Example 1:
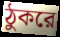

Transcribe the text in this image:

ঠুকরে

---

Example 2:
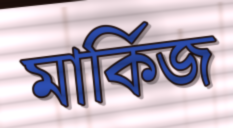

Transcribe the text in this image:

মার্কিজ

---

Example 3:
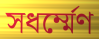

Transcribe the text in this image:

সধর্ম্মেণ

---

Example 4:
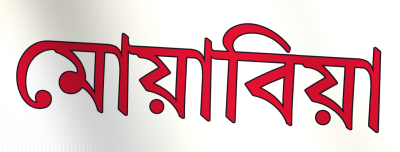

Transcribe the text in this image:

মোয়াবিয়া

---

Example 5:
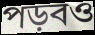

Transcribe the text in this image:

পড়বও